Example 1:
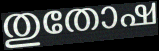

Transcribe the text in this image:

തുതോഷ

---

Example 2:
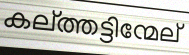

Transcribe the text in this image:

കല്ത്തട്ടിന്മേല്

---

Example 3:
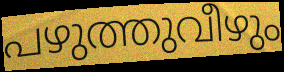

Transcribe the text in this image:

പഴുത്തുവീഴും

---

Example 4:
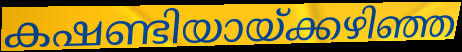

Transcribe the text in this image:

കഷണ്ടിയായ്ക്കഴിഞ്ഞ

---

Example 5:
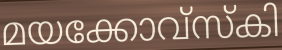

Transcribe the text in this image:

മയക്കോവ്സ്കി